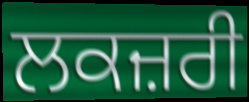
ਲਕਜ਼ਰੀ